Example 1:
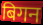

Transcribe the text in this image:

बिगन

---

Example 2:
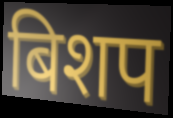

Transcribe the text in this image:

बिशप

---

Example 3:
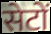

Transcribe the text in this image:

सेटों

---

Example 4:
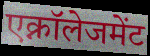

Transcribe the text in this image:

एक्नॉलेजमेंट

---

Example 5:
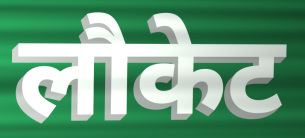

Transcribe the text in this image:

लौकेट